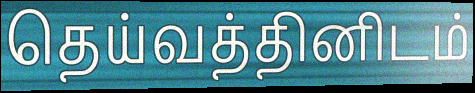
தெய்வத்தினிடம்